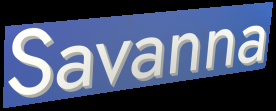
Savanna